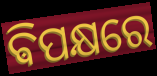
ଵିପକ୍ଷରେ